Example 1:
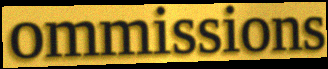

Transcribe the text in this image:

ommissions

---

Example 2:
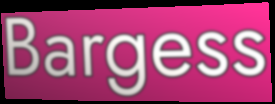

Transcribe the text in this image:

Bargess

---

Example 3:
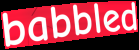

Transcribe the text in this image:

babbled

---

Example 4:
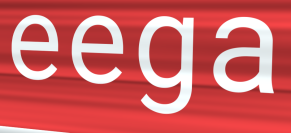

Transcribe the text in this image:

eega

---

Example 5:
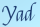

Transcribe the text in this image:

Yad